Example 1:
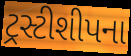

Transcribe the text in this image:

ટ્રસ્ટીશીપના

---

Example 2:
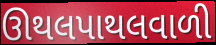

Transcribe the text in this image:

ઊથલપાથલવાળી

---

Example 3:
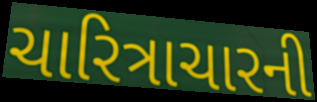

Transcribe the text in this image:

ચારિત્રાચારની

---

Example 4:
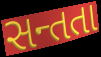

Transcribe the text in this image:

સન્તતા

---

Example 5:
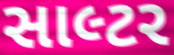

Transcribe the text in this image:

સાલ્ટર